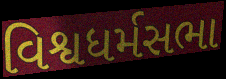
વિશ્વધર્મસભા